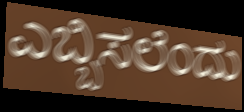
ಎಬ್ಬಿಸಲೆಂದು